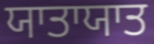
ਯਾਤਾਯਾਤ